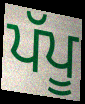
ਪੱਪੂ